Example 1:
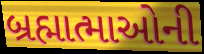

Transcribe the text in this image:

બ્રહ્માત્માઓની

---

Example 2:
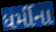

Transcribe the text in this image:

ધર્મીના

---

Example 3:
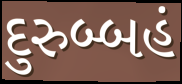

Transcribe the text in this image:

દુરુબ્બહં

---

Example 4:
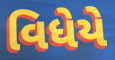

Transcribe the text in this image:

વિધેયે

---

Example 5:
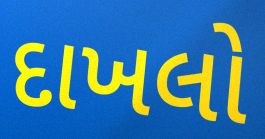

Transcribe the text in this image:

દાખલો